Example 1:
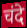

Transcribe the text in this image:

चंदे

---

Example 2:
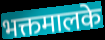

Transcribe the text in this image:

भक्तमालके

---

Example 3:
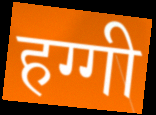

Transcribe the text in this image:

हग्गी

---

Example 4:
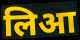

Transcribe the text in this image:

लिआ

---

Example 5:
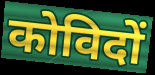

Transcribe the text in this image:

कोविदों